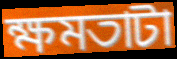
ক্ষমতাটা